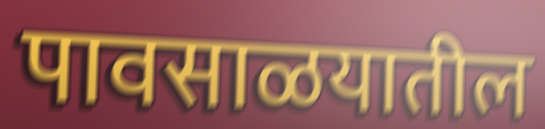
पावसाळयातील